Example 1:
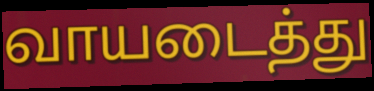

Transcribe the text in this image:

வாயடைத்து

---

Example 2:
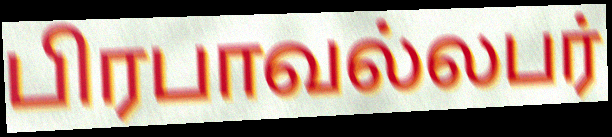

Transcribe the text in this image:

பிரபாவல்லபர்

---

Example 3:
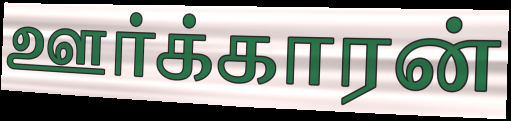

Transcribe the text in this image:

ஊர்க்காரன்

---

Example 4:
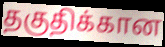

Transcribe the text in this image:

தகுதிக்கான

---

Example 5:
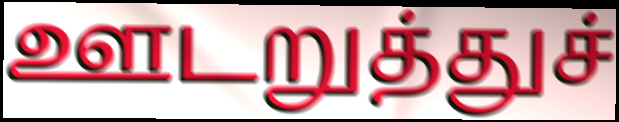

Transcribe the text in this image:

ஊடறுத்துச்